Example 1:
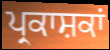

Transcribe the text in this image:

ਪ੍ਰਕਾਸ਼ਕਾਂ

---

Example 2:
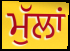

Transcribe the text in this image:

ਮੁੱਲਾਂ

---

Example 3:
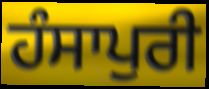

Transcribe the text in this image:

ਹੰਸਾਪੁਰੀ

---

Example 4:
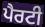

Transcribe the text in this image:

ਪੈਰਟੀ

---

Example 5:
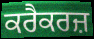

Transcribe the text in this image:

ਕਰੈਕਰਜ਼